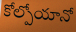
కోల్పోయానో